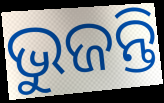
ଭୁଜନ୍ତି